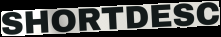
SHORTDESC